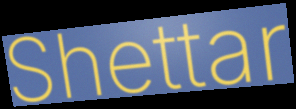
Shettar